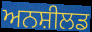
ਅਨਸ਼ੀਲਡ